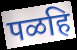
पळहि